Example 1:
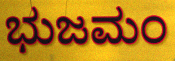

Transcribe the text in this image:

ಭುಜಮಂ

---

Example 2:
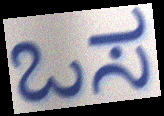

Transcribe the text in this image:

ಒಸ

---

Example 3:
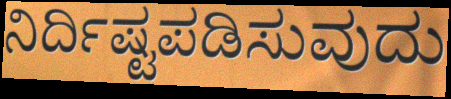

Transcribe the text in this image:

ನಿರ್ದಿಷ್ಟಪಡಿಸುವುದು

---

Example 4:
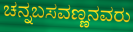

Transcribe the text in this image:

ಚನ್ನಬಸವಣ್ಣನವರು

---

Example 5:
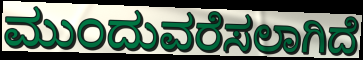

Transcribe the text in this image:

ಮುಂದುವರೆಸಲಾಗಿದೆ